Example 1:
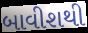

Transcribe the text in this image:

બાવીશથી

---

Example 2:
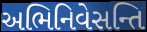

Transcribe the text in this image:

અભિનિવેસન્તિ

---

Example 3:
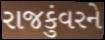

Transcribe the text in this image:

રાજકુંવરને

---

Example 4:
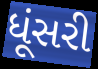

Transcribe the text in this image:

ધૂંસરી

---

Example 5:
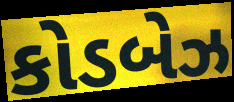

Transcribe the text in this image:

કોડબેઝ